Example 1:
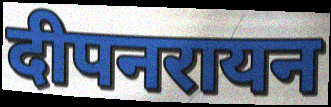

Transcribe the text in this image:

दीपनरायन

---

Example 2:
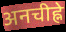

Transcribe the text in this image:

अनचीह्ने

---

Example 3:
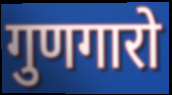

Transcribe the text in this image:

गुणगारो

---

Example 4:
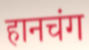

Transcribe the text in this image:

हानचंग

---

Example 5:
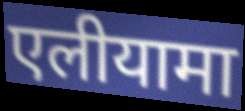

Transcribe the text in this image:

एलीयामा